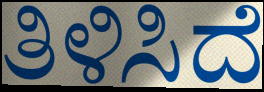
ತಿಳಿಸಿದೆ